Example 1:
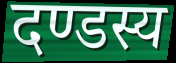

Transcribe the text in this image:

दण्डस्य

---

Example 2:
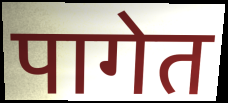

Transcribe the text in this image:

पागेत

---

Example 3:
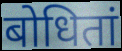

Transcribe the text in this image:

बोधितां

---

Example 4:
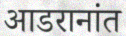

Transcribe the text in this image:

आडरानांत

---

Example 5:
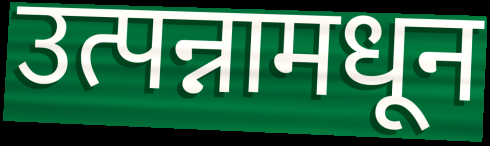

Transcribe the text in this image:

उत्पन्नामधून